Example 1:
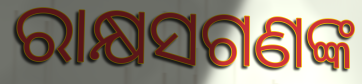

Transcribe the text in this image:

ରାକ୍ଷସଗଣଙ୍କ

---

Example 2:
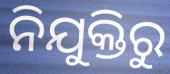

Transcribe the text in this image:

ନିଯୁକ୍ତିରୁ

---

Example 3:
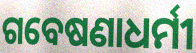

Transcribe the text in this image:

ଗବେଷଣାଧର୍ମୀ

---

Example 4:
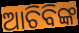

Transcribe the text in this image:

ଆଚିବିଙ୍କ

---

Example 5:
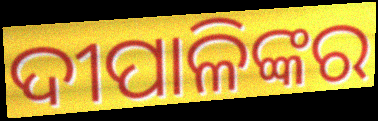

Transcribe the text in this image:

ଦୀପାଳିଙ୍କର